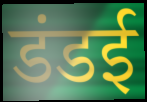
डंडई